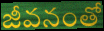
జీవనంతో